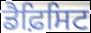
ਡੈਫ਼ਿਸਿਟ